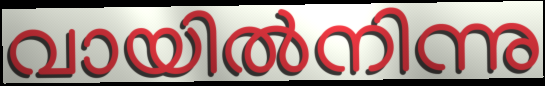
വായിൽനിന്നു